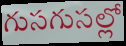
గుసగుసల్లో